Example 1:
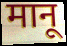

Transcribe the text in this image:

मानू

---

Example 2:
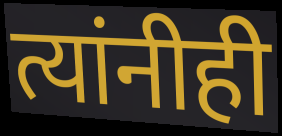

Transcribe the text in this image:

त्यांनीही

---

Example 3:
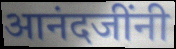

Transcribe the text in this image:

आनंदजींनी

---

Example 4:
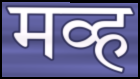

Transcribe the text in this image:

मव्ह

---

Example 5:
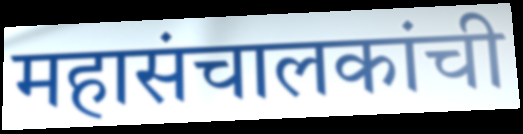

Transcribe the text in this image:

महासंचालकांची